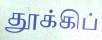
தூக்கிப்